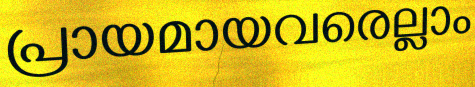
പ്രായമായവരെല്ലാം